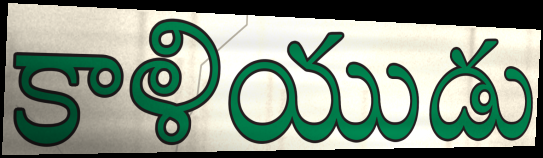
కాళియుడు